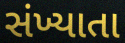
સંખ્યાતા